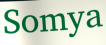
Somya